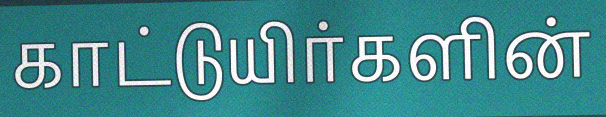
காட்டுயிர்களின்